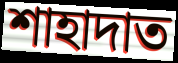
শাহাদাত